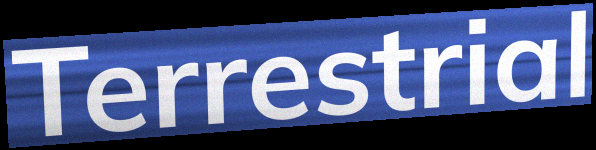
Terrestrial